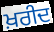
ਖ਼ਰੀਦ